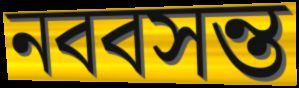
নববসন্ত